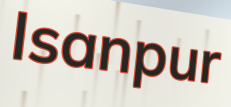
Isanpur